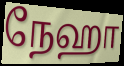
நேஹா